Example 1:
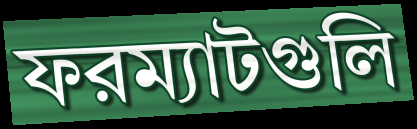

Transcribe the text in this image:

ফরম্যাটগুলি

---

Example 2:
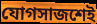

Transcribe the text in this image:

যোগসাজশেই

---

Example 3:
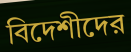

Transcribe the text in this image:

বিদেশীদের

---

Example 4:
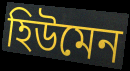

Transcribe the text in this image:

হিউমেন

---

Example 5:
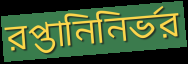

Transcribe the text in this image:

রপ্তানিনির্ভর